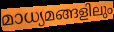
മാധ്യമങ്ങളിലും